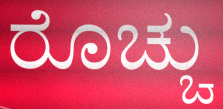
ರೊಚ್ಚು